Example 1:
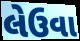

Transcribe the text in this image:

લેઉવા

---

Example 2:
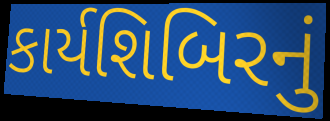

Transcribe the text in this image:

કાર્યશિબિરનું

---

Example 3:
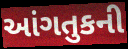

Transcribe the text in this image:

આંગતુકની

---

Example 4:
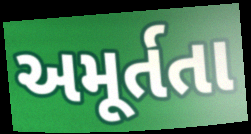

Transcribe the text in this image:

અમૂર્તતા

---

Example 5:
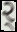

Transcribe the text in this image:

ર્